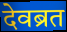
देवब्रत